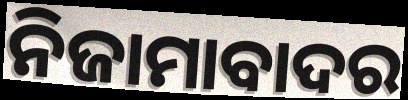
ନିଜାମାବାଦର